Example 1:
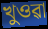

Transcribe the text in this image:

খুওৱা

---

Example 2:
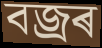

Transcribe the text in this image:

বজ্ৰৰ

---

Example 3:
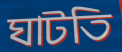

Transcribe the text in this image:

ঘাটতি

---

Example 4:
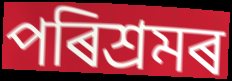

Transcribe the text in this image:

পৰিশ্ৰমৰ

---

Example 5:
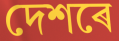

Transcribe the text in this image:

দেশৰে